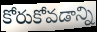
కోరుకోవడాన్ని